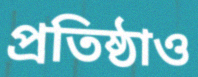
প্রতিষ্ঠাও